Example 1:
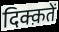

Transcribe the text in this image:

दिक्क़तें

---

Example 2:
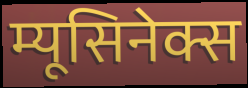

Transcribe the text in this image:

म्यूसिनेक्स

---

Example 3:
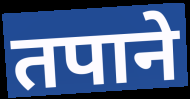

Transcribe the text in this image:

तपाने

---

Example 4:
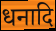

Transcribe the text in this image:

धनादि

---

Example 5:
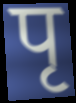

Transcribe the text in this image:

पृ